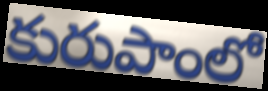
కురుపాంలో